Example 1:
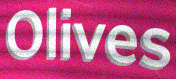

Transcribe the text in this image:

Olives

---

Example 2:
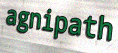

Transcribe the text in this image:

agnipath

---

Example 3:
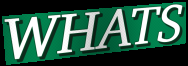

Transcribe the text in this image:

WHATS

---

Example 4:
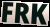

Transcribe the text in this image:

FRK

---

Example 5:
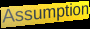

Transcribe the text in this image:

Assumption